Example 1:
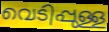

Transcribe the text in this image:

വെടിപ്പുള്ള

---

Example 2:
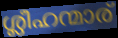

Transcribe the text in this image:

ശ്ലീഹന്മാര്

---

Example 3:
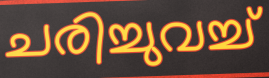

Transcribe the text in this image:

ചരിച്ചുവച്ച്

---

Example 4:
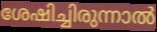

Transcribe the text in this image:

ശേഷിച്ചിരുന്നാൽ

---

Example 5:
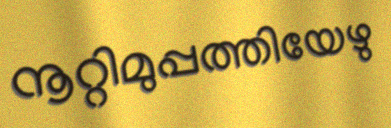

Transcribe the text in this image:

നൂറ്റിമുപ്പത്തിയേഴു